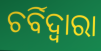
ଚର୍ବିଦ୍ଵାରା